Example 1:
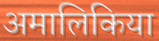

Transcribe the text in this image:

अमालिकिया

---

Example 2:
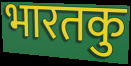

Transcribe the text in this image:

भारतकु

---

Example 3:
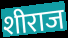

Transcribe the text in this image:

शीराज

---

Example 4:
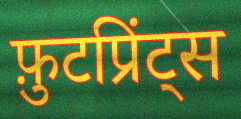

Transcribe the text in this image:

फ़ुटप्रिंट्स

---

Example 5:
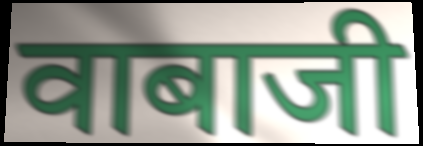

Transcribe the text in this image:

वाबाजी